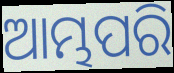
ଆମ୍ଭପରି